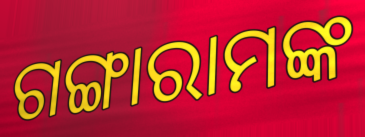
ଗଙ୍ଗାରାମଙ୍କ